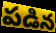
పడిన